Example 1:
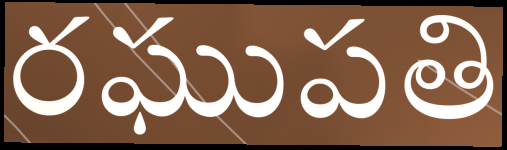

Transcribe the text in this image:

రఘుపతి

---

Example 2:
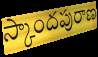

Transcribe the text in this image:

స్కాందపురాణ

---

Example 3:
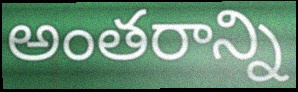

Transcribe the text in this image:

అంతరాన్ని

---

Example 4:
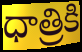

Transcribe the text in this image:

ధాత్రికి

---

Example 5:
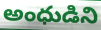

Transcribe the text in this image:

అంధుడిని